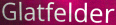
Glatfelder